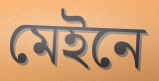
মেইনে